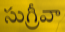
సుగ్రీవా